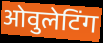
ओवुलेटिंग